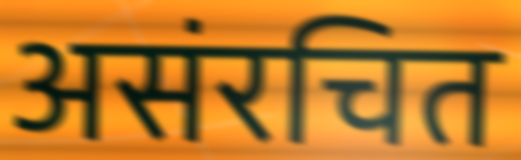
असंरचित